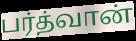
பர்த்வான்